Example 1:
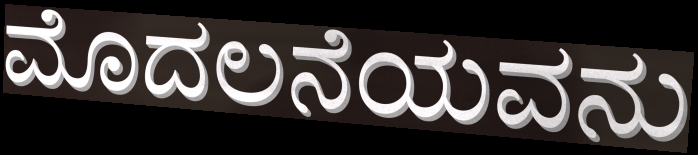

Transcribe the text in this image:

ಮೊದಲನೆಯವನು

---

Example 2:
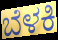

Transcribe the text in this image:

ಬೆಳಕಿ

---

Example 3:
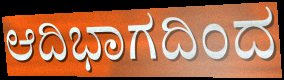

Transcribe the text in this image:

ಆದಿಭಾಗದಿಂದ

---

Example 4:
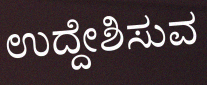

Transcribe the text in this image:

ಉದ್ದೇಶಿಸುವ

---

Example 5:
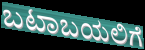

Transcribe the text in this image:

ಬಟಾಬಯಲಿಗೆ